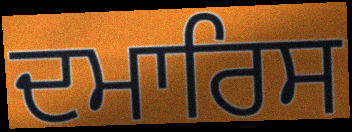
ਦਮਾਰਿਸ